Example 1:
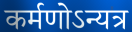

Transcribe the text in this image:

कर्मणोऽन्यत्र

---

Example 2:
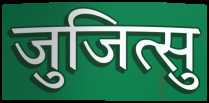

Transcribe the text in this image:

जुजित्सु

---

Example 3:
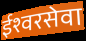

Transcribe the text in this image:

ईश्वरसेवा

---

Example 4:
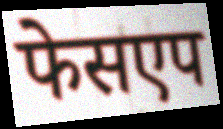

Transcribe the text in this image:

फेसएप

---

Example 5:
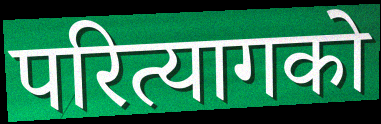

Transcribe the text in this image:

परित्यागको